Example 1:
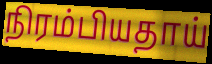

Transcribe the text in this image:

நிரம்பியதாய்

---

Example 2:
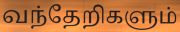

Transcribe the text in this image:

வந்தேறிகளும்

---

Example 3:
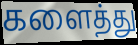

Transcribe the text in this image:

களைத்து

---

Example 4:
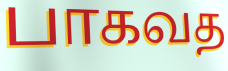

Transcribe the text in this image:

பாகவத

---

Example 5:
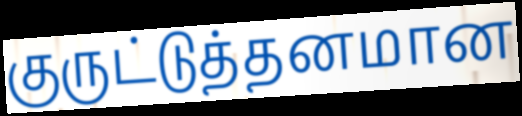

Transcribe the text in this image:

குருட்டுத்தனமான